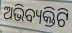
ଅଭିବ୍ୟକ୍ତିଟି